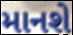
માનશે